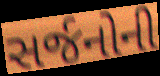
સર્જનોની